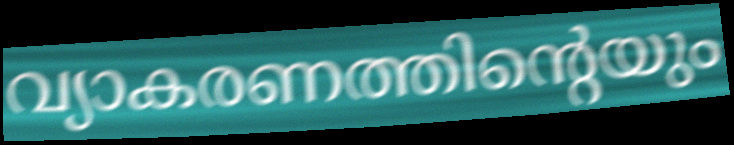
വ്യാകരണത്തിന്റെയും